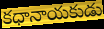
కధానాయకుడు